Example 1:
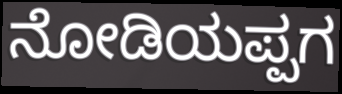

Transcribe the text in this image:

ನೋಡಿಯಪ್ಪಗ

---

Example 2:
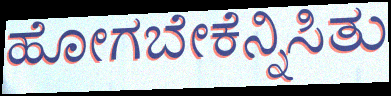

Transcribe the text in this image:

ಹೋಗಬೇಕೆನ್ನಿಸಿತು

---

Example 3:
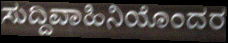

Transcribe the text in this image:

ಸುದ್ದಿವಾಹಿನಿಯೊಂದರ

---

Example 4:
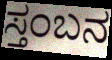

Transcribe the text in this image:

ಸ್ತಂಬನ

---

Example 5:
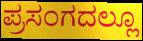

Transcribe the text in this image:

ಪ್ರಸಂಗದಲ್ಲೂ